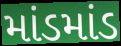
માંડમાંડ